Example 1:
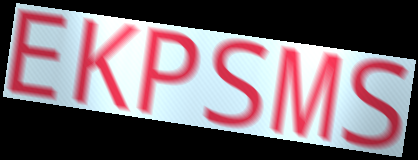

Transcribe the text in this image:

EKPSMS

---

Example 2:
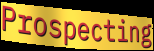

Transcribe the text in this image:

Prospecting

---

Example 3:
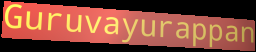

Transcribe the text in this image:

Guruvayurappan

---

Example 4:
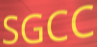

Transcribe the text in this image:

SGCC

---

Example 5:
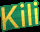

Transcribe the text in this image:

Kili